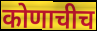
कोणाचीच